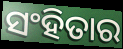
ସଂହିତାର